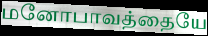
மனோபாவத்தையே